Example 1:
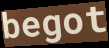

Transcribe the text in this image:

begot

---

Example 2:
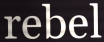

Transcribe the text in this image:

rebel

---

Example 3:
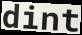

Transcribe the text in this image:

dint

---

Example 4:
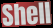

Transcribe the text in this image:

Shell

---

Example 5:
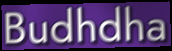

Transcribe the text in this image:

Budhdha